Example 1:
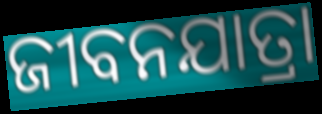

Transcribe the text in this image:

ଜୀବନଯାତ୍ରା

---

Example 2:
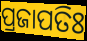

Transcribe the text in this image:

ପ୍ରଜାପତିଃ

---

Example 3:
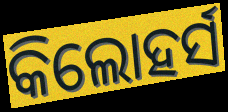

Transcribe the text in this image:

କିଲୋହର୍ସ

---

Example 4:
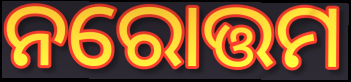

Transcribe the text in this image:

ନରୋତ୍ତମ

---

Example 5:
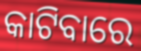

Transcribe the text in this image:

କାଟିବାରେ